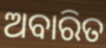
ଅବାରିତ